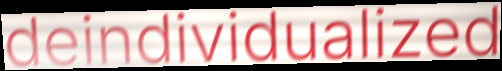
deindividualized